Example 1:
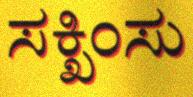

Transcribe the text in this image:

ಸಕ್ಖಿಂಸು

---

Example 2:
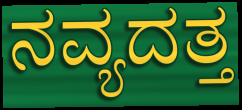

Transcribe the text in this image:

ನವ್ಯದತ್ತ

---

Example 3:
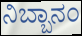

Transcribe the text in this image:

ನಿಬ್ಬಾನಂ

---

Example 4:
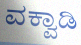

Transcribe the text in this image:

ವಕ್ವಾಡಿ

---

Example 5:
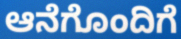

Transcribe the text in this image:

ಆನೆಗೊಂದಿಗೆ